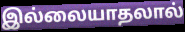
இல்லையாதலால்